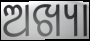
ଅଖ୍ୟା